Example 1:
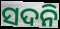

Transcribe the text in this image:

ସଦନି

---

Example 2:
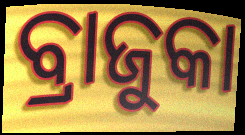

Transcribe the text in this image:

ବ୍ରାଜୁକା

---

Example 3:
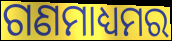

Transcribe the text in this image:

ଗଣମାଧ୍ୟମର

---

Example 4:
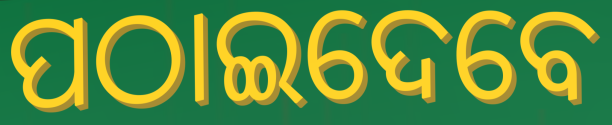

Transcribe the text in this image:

ପଠାଇଦେବେ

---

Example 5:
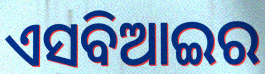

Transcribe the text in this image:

ଏସବିଆଇର